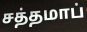
சத்தமாப்